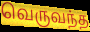
வெருவந்த